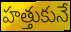
హత్తుకునే